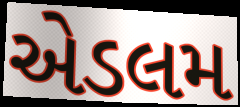
એડલમ